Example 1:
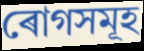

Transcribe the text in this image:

ৰোগসমূহ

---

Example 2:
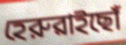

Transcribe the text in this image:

হেৰুৱাইছোঁ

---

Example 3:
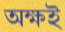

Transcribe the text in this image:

অক্ষই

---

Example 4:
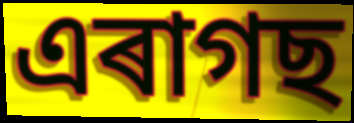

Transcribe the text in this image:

এৰাগছ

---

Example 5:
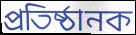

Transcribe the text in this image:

প্ৰতিষ্ঠানক